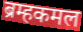
ब्रम्हकमल